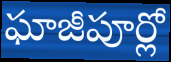
ఘాజీపూర్లో